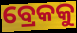
ବ୍ରେକକୁ